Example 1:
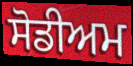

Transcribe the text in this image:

ਸੋਡੀਅਮ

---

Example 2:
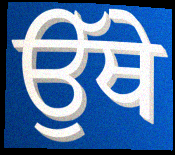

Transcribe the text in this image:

ਉੁੱਥੇ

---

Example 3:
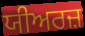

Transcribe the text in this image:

ਯੀਅਰਜ਼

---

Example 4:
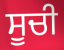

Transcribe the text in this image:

ਸੂਚੀ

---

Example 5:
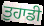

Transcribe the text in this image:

ਤੁਹਾਡੀ